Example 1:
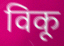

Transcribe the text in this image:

विकू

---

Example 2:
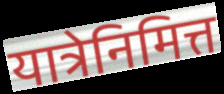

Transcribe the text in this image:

यात्रेनिमित्त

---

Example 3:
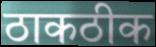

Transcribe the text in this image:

ठाकठीक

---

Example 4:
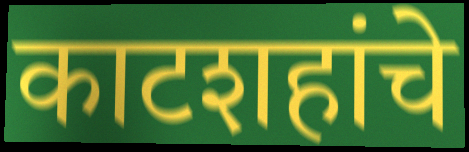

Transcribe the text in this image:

काटशहांचे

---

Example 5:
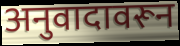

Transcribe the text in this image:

अनुवादावरून